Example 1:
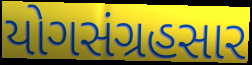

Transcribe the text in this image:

યોગસંગ્રહસાર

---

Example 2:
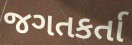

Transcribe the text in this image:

જગતકર્તા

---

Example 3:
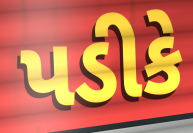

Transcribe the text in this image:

પડીકે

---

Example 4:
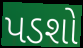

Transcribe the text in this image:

પડશો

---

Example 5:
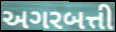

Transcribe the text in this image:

અગરબત્તી